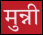
मुन्नी